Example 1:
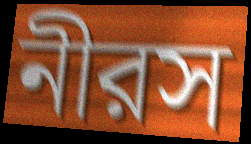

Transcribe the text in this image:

নীরস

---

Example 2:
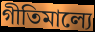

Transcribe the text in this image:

গীতিমাল্যে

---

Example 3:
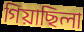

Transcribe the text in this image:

গিয়াছিলা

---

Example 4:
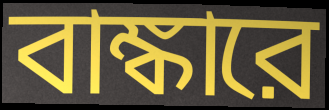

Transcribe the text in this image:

বাঙ্কারে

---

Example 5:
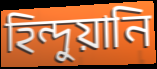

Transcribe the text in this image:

হিন্দুয়ানি